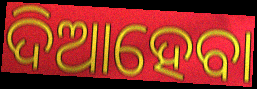
ଦିଆହେବା